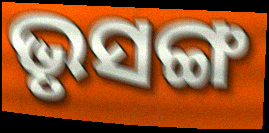
ଭୃସଙ୍ଗ